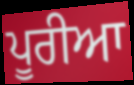
ਪੂਰੀਆ